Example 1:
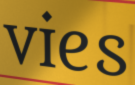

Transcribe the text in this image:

vies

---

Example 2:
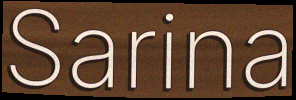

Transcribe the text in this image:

Sarina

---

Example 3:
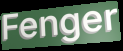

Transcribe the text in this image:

Fenger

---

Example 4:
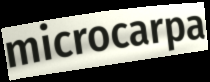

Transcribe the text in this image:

microcarpa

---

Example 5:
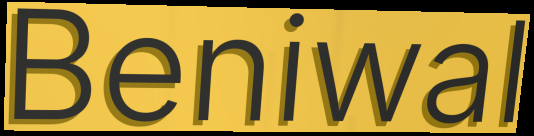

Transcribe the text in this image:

Beniwal